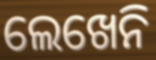
ଲେଖେନି